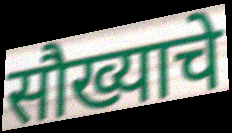
सौख्याचे